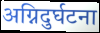
अग्निदुर्घटना